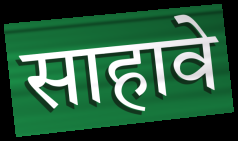
साहावे